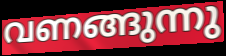
വണങ്ങുന്നു